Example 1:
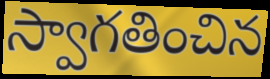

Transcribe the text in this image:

స్వాగతించిన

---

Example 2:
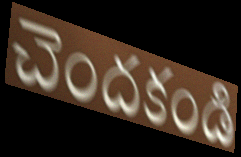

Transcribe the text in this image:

చెందకండి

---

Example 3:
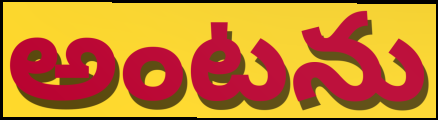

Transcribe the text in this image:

అంటను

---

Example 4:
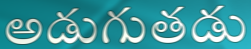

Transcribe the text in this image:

అడుగుతడు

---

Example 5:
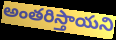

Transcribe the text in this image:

అంతరిస్తాయని